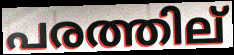
പരത്തില്